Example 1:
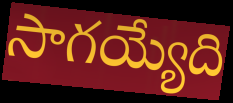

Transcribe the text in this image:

సాగయ్యేది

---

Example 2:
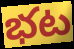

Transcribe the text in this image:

భట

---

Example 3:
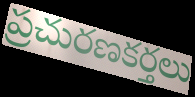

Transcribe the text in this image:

ప్రచురణకర్తలు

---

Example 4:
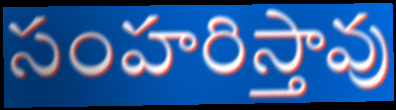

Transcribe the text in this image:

సంహరిస్తావు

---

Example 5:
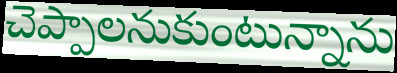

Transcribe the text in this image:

చెప్పాలనుకుంటున్నాను